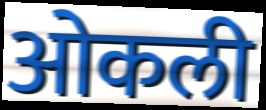
ओकली